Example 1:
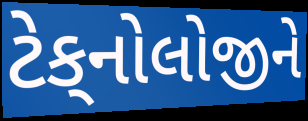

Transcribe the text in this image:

ટેક્‌નોલોજીને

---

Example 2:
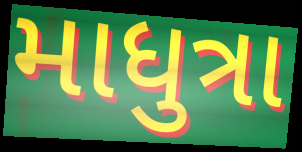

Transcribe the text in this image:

માધુત્રા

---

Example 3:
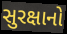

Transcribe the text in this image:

સુરક્ષાનો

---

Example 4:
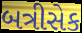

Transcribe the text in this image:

બત્રીસેક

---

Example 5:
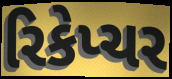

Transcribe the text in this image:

રિકેપ્ચર